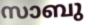
സാബു